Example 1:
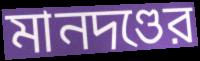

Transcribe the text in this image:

মানদণ্ডের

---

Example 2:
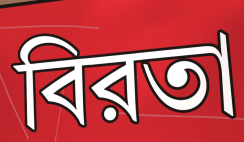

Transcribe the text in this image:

বিরতা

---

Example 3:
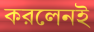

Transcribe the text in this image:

করলেনই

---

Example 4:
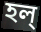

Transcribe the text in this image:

হল্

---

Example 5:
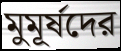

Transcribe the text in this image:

মুমূর্ষদের